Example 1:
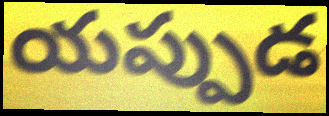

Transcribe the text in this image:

యప్పుడ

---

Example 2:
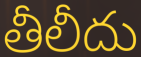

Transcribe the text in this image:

తీలీదు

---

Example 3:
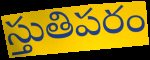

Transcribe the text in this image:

స్తుతిపరం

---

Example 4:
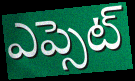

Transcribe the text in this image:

ఎప్సెట్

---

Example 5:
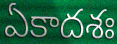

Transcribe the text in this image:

ఏకాదశః